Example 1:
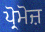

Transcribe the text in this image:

ਪ੍ਰੋਮੋਜ਼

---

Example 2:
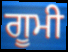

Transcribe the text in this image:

ਗੂਮੀ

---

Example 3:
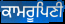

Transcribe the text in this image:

ਕਾਮਰੂਪਿਣੀ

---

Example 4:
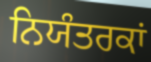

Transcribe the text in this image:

ਨਿਯੰਤਰਕਾਂ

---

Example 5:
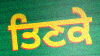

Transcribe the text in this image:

ਤਿਣਕੇ